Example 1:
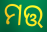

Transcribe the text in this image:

ମତ୍ତ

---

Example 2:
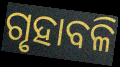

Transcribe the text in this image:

ଗୃହାବଳି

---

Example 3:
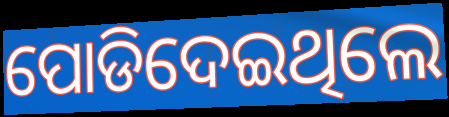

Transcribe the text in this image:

ପୋଡିଦେଇଥିଲେ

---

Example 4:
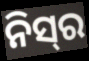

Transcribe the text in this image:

ନିସ୍‌ର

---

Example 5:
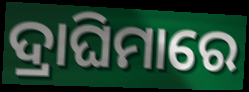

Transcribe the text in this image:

ଦ୍ରାଘିମାରେ